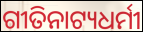
ଗୀତିନାଟ୍ୟଧର୍ମୀ